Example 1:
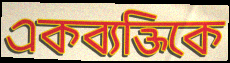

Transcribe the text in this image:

একব্যক্তিকে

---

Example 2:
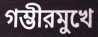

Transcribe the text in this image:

গম্ভীরমুখে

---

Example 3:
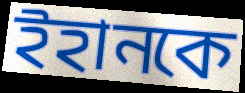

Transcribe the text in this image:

ইহানকে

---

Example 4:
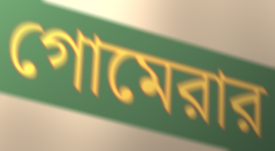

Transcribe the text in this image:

গোমেরার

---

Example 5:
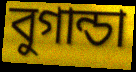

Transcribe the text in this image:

বুগান্ডা